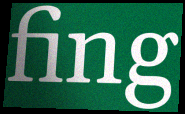
fing